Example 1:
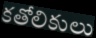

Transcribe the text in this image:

కతోలికులు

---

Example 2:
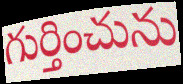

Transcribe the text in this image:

గుర్తించును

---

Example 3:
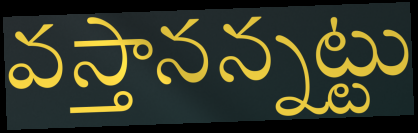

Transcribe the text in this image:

వస్తానన్నట్టు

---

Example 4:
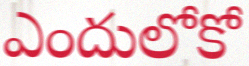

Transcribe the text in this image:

ఎందులోకో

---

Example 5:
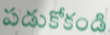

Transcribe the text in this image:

పడుకోకండి